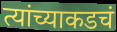
त्यांच्याकडचं